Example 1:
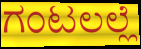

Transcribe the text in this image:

ಗಂಟಲಲ್ಲೆ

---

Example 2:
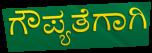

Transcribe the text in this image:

ಗೌಪ್ಯತೆಗಾಗಿ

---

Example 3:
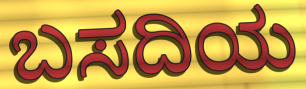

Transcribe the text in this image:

ಬಸದಿಯ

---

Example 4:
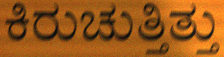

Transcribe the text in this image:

ಕಿರುಚುತ್ತಿತ್ತು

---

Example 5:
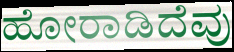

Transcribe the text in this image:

ಹೋರಾಡಿದೆವು